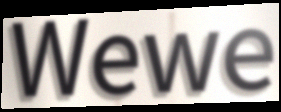
Wewe